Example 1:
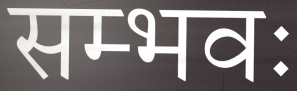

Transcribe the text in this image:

सम्भवः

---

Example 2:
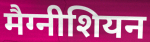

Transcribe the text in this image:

मैग्नीशियन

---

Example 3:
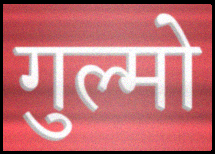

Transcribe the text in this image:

गुल्मो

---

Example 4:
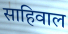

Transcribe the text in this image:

साहिवाल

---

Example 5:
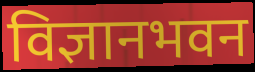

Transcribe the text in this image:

विज्ञानभवन